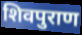
शिवपुराण